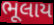
ભૂલાય